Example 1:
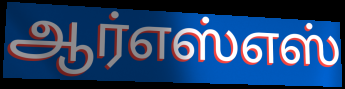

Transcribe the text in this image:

ஆர்எஸ்எஸ்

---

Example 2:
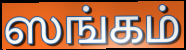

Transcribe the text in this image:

ஸங்கம்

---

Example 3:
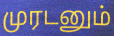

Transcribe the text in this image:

முரடனும்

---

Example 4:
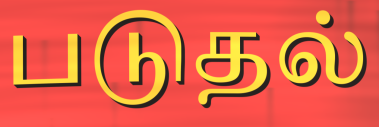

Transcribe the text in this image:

படுதல்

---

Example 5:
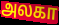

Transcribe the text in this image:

அலகா